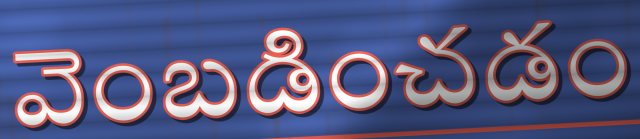
వెంబడించడం